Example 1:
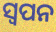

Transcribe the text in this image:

ସ୍ବପନ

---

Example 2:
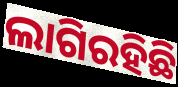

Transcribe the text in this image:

ଲାଗିରହିଛି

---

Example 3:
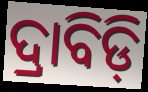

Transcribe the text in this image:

ଦ୍ରାବିଡ଼ି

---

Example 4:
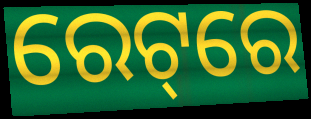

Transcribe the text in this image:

ରେଟ୍‌ରେ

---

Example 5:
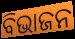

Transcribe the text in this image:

ବିଭାଜନ